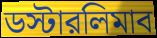
ডস্টারলিমাব